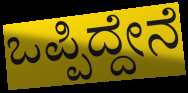
ಒಪ್ಪಿದ್ದೇನೆ